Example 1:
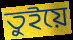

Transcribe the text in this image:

তুইয়ে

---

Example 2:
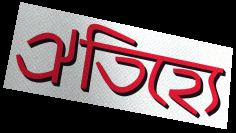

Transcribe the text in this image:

ঐতিহ্যে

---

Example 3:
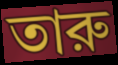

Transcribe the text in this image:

তারু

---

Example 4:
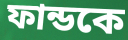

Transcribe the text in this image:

ফান্ডকে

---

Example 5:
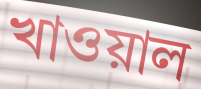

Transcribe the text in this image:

খাওয়াল